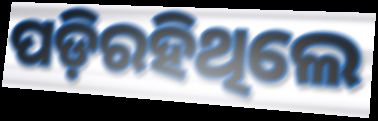
ପଡ଼ିରହିଥିଲେ